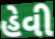
હેવી